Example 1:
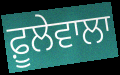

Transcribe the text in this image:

ਫ਼ੂਲੇਵਾਲਾ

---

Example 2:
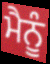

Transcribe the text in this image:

ਮੈਨੂੰ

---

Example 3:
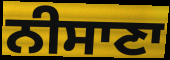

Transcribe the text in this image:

ਨੀਸਾਣਾ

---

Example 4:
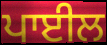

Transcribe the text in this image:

ਪਾਈਲ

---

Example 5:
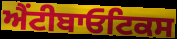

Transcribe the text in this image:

ਐਂਟੀਬਾਓਟਿਕਸ